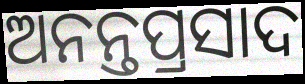
ଅନନ୍ତପ୍ରସାଦ